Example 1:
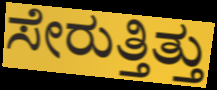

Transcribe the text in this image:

ಸೇರುತ್ತಿತ್ತು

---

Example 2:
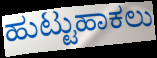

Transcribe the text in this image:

ಹುಟ್ಟುಹಾಕಲು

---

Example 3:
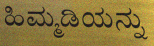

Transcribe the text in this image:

ಹಿಮ್ಮಡಿಯನ್ನು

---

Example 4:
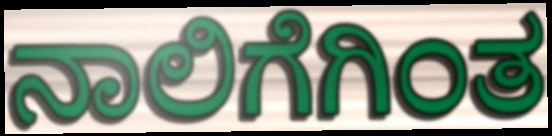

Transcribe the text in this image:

ನಾಲಿಗೆಗಿಂತ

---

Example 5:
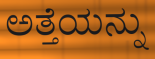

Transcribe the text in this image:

ಅತ್ತೆಯನ್ನು